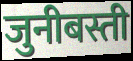
जुनीबस्ती